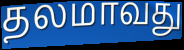
தலமாவது